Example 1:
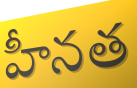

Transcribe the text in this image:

హీనత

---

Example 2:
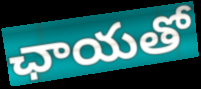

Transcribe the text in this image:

ఛాయతో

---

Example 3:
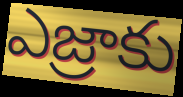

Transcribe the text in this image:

ఎజ్రాకు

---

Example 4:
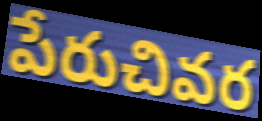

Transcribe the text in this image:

పేరుచివర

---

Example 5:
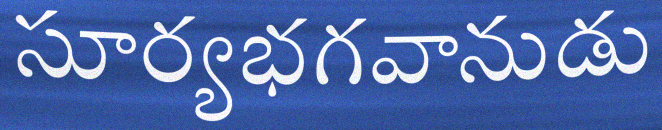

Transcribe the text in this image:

సూర్యభగవానుడు